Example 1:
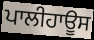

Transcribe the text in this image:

ਪਾਲੀਹਾਊਸ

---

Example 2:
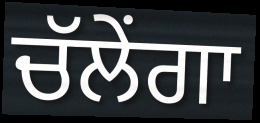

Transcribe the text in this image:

ਚੱਲੇਂਗਾ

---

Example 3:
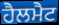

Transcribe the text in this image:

ਹੈਲਮੈਟ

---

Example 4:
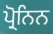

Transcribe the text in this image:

ਪ੍ਰੋਨਿਨ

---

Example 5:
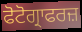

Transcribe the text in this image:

ਫੋਟੋਗ੍ਰਾਫਰਜ਼